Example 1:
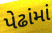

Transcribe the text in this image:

પેઢાંમાં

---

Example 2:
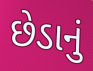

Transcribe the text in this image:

છેડાનું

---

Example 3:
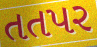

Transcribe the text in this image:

તતપર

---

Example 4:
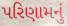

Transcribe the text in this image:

પરિણામનું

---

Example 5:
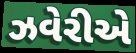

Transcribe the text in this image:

ઝવેરીએ